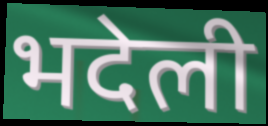
भदेली